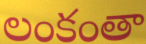
లంకంతా